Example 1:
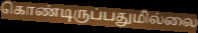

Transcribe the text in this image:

கொண்டிருப்பதுமில்லை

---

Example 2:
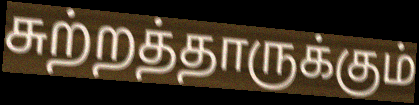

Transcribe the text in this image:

சுற்றத்தாருக்கும்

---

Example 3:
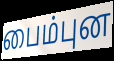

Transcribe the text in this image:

பைம்புன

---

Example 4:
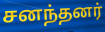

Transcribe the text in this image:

சனந்தனர்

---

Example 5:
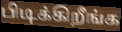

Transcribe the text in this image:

பிடிக்கிறீங்க